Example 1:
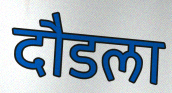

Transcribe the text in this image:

दौडला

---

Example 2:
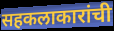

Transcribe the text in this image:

सहकलाकारांची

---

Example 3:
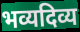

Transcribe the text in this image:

भव्यदिव्य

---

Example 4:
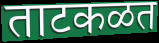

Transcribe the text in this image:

ताटकळत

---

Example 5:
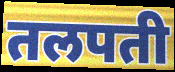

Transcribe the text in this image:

तलपती